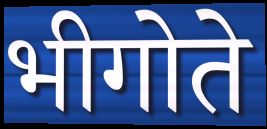
भीगोते